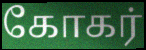
கோகர்